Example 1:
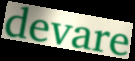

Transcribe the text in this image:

devare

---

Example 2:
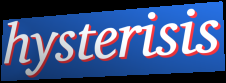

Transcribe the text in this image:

hysterisis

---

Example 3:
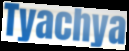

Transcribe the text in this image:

Tyachya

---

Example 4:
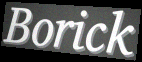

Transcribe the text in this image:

Borick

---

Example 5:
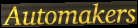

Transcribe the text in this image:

Automakers